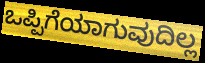
ಒಪ್ಪಿಗೆಯಾಗುವುದಿಲ್ಲ